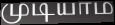
முடியாம